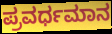
ಪ್ರವರ್ಧಮಾನ